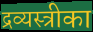
द्रव्यस्त्रीका